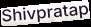
Shivpratap